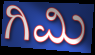
ಗಿಮಿ